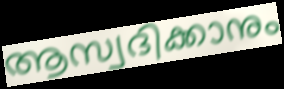
ആസ്വദിക്കാനും